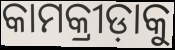
କାମକ୍ରୀଡ଼ାକୁ